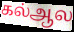
கல்ஆல